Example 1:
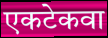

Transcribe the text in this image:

एकटेकवा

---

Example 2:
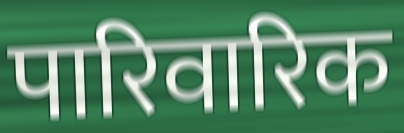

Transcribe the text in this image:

पारिवारिक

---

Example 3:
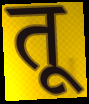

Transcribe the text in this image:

तू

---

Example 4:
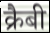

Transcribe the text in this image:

क्रैबी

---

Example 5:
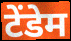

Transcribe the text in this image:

टेंडेम